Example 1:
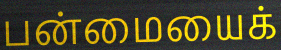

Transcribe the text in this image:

பன்மையைக்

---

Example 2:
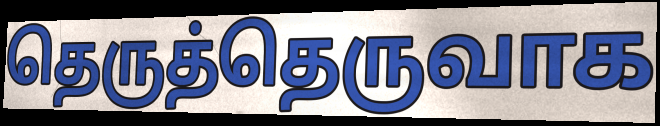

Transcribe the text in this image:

தெருத்தெருவாக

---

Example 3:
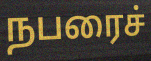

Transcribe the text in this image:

நபரைச்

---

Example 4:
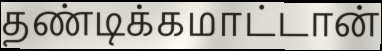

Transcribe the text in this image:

தண்டிக்கமாட்டான்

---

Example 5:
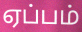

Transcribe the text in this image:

ஏப்பம்